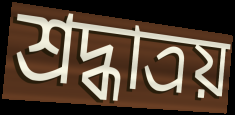
শ্রদ্ধাত্রয়